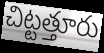
చిట్టత్తూరు